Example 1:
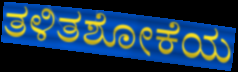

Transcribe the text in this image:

ತಳಿತಶೋಕೆಯ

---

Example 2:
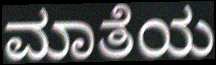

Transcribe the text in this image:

ಮಾತೆಯ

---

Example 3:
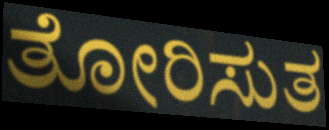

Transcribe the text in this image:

ತೋರಿಸುತ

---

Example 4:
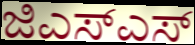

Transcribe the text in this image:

ಜಿಎಸ್ಎಸ್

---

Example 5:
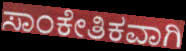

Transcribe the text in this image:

ಸಾಂಕೇತಿಕವಾಗಿ